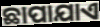
ଛାପାଯାଏ